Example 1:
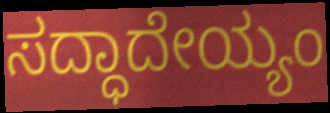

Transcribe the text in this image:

ಸದ್ಧಾದೇಯ್ಯಂ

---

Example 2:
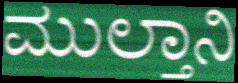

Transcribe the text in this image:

ಮುಲ್ತಾನಿ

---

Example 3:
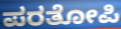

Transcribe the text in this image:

ಪರತೋಪಿ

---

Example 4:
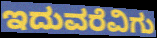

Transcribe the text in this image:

ಇದುವರೆವಿಗು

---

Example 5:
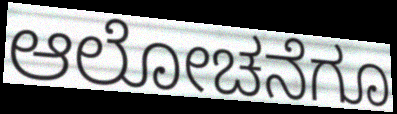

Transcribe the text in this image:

ಆಲೋಚನೆಗೂ